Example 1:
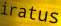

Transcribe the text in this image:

iratus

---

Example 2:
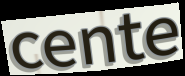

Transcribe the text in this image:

cente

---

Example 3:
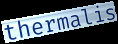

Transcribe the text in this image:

thermalis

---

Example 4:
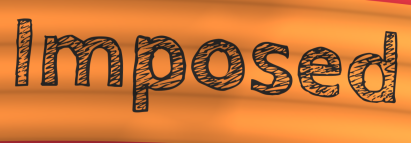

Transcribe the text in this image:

Imposed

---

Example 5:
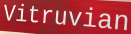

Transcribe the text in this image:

Vitruvian